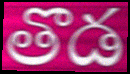
తొడ